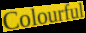
Colourful